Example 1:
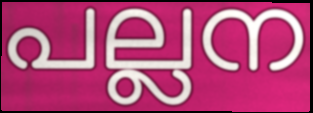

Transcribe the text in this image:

പല്ലന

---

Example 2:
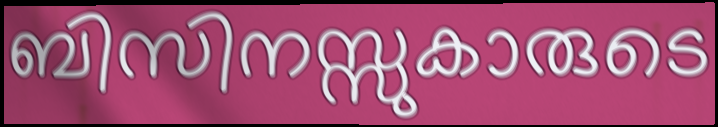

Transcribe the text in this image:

ബിസിനസ്സുകാരുടെ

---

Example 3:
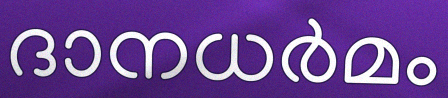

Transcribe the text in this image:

ദാനധർമം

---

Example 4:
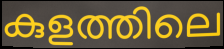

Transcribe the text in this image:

കുളത്തിലെ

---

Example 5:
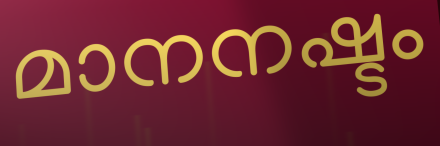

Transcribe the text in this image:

മാനനഷ്ടം